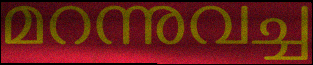
മറന്നുവച്ച